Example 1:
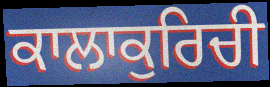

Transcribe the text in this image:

ਕਾਲਾਕੁਰਿਚੀ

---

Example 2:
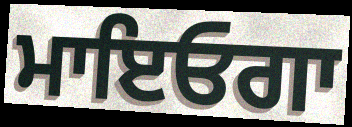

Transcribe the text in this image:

ਮਾਇਓਗਾ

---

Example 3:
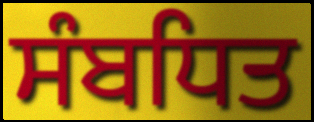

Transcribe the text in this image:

ਸੰਬਧਿਤ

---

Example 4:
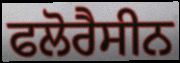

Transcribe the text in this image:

ਫਲੋਰੈਸੀਨ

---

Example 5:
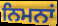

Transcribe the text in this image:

ਨਿਮਨਾਂ